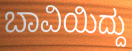
ಬಾವಿಯಿದ್ದು